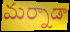
మర్నాడా